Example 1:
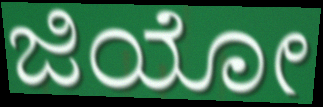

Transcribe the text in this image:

ಜಿಯೋ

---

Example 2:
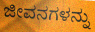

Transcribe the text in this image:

ಜೀವನಗಳನ್ನು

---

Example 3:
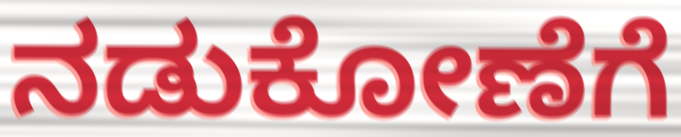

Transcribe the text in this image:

ನಡುಕೋಣೆಗೆ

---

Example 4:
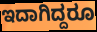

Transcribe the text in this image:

ಇದಾಗಿದ್ದರೂ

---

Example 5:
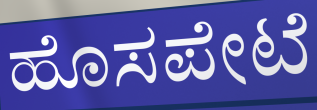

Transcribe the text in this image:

ಹೊಸಪೇಟೆ